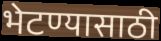
भेटण्यासाठी